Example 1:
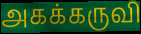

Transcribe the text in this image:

அகக்கருவி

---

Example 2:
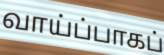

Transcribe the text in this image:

வாய்ப்பாகப்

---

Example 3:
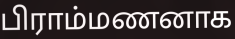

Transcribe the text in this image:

பிராம்மணனாக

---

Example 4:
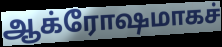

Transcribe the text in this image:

ஆக்ரோஷமாகச்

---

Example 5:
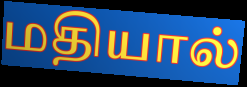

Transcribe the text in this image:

மதியால்